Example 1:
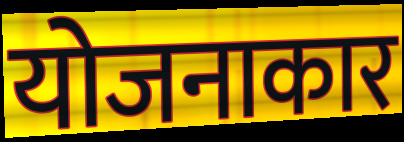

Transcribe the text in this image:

योजनाकार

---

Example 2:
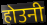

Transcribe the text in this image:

होउनी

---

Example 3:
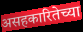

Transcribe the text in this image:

असहकारितेच्या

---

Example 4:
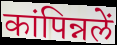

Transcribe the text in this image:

कांपिन्नलें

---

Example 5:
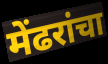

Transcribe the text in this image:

मेंढरांचा